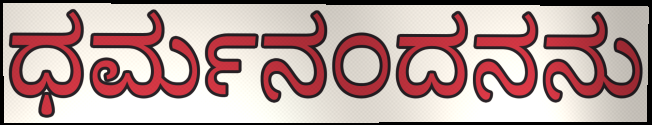
ಧರ್ಮನಂದನನು